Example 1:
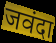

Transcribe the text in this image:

जवंदा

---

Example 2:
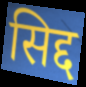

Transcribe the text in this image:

सिद्द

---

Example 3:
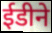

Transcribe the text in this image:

ईडीने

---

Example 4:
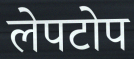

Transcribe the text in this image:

लेपटोप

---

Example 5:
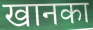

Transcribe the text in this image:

खानका